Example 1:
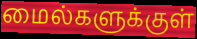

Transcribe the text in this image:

மைல்களுக்குள்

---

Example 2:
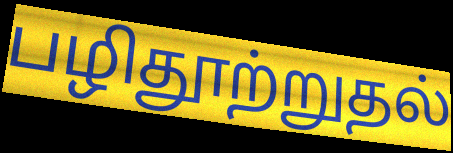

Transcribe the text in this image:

பழிதூற்றுதல்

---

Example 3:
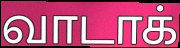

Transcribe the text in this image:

வாடாக்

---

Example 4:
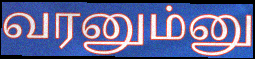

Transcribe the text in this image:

வரனும்னு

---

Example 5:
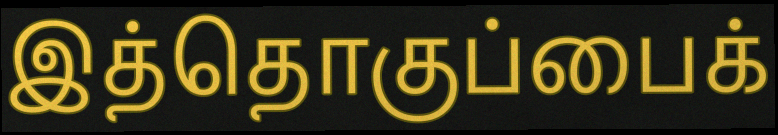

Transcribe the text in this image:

இத்தொகுப்பைக்